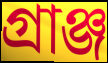
গ্রাঞ্জ